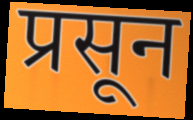
प्रसून